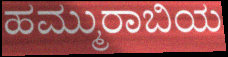
ಹಮ್ಮುರಾಬಿಯ